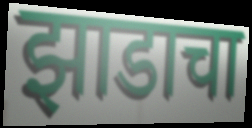
झाडाचा